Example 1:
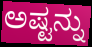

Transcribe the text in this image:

ಅಷ್ಟನ್ನು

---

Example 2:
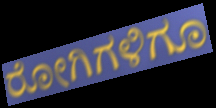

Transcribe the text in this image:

ರೋಗಿಗಳಿಗೂ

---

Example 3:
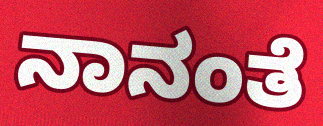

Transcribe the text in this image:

ನಾನಂತೆ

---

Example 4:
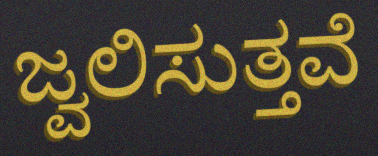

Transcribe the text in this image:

ಜ್ವಲಿಸುತ್ತವೆ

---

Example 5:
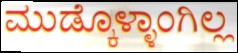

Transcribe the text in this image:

ಮುಡ್ಕೊಳ್ಳಾಂಗಿಲ್ಲ